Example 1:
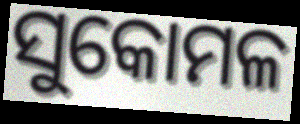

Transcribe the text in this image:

ସୁକୋମଳ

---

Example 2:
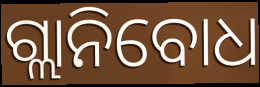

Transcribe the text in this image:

ଗ୍ଲାନିବୋଧ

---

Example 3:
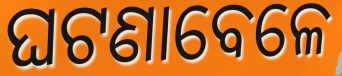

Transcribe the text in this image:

ଘଟଣାବେଳେ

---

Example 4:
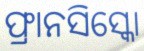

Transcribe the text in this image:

ଫ୍ରାନସିସ୍କୋ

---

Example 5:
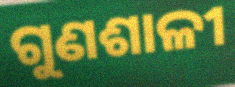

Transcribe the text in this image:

ଗୁଣଶାଳୀ